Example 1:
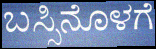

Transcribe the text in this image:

ಬಸ್ಸಿನೊಳಗೆ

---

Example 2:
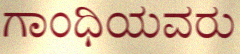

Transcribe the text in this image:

ಗಾಂಧಿಯವರು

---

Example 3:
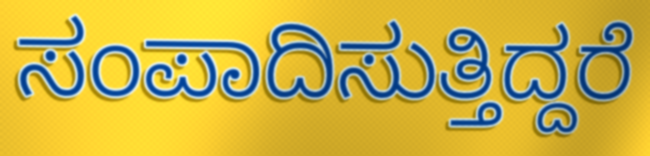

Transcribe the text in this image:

ಸಂಪಾದಿಸುತ್ತಿದ್ದರೆ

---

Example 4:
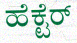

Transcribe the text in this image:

ಹೆಕ್ಟೆರ್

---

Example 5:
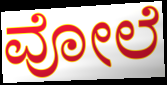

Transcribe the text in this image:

ವೋಲೆ